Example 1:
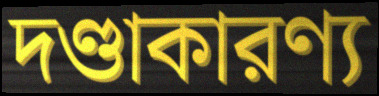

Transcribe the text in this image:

দণ্ডাকারণ্য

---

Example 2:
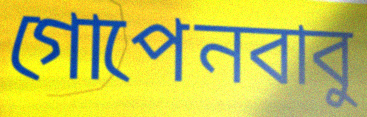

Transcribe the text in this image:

গোপেনবাবু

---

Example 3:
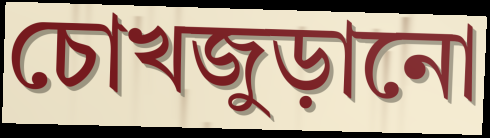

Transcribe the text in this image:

চোখজুড়ানো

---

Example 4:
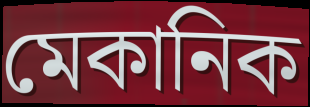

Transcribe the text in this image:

মেকানিক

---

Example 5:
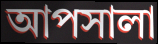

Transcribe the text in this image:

আপসালা